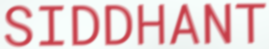
SIDDHANT